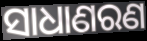
ସାଧାଣରଣ